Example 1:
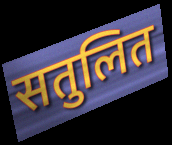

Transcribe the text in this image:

सतुलित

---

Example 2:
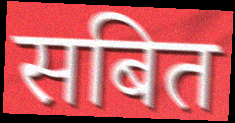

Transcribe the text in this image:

सबित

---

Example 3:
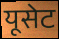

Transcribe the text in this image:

यूसेट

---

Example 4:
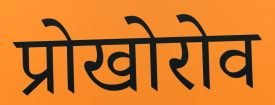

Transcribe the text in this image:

प्रोखोरोव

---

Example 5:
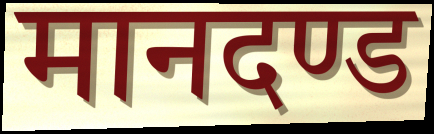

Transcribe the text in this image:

मानदण्ड